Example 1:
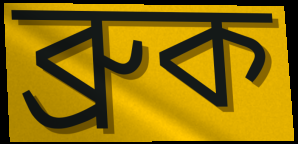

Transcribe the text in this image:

ব্রুক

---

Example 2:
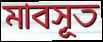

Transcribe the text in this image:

মাবসূত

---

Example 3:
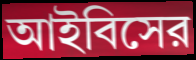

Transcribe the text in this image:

আইবিসের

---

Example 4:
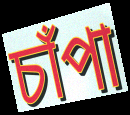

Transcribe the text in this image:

চাঁপা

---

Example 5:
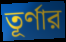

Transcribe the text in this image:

তূর্ণার